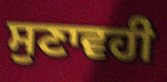
ਸੁਣਾਵਹੀ